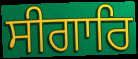
ਸੀਗਾਰਿ